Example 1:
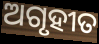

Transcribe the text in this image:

ଅଗୃହୀତ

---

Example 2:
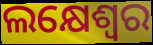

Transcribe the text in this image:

ଲକ୍ଷେଶ୍ଵର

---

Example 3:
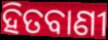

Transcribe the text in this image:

ହିତବାଣୀ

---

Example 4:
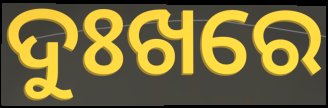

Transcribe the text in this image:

ଦୁଃଖରେ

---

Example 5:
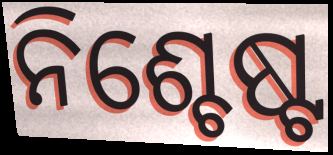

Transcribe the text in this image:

ନିଶ୍ଚେଷ୍ଟ